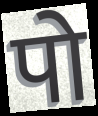
पो